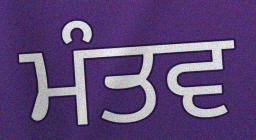
ਮੰਤਵ